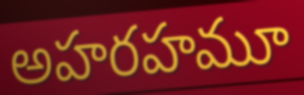
అహరహమూ